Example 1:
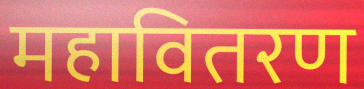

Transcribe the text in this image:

महावितरण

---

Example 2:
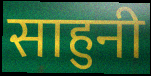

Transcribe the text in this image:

साहुनी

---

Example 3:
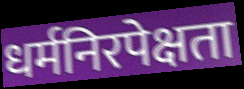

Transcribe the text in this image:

धर्मनिरपेक्षता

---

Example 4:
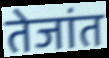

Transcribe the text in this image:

तेजांत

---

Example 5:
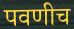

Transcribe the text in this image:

पवणीच